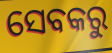
ସେବକରୁ